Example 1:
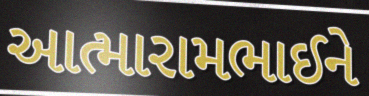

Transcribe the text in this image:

આત્મારામભાઈને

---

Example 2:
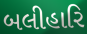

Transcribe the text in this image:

બલીહારિ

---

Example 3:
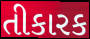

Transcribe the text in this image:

તીકારક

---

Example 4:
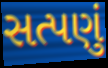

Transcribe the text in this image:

સત્પણું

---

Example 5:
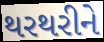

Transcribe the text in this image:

થરથરીને